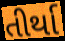
તીર્થા